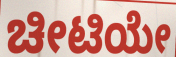
ಚೀಟಿಯೇ